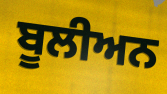
ਬੂਲੀਅਨ